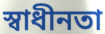
স্বাধীনতা